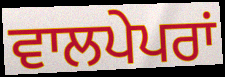
ਵਾਲਪੇਪਰਾਂ